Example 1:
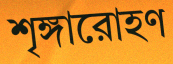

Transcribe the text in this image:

শৃঙ্গারোহণ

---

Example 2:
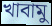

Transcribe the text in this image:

খাবামু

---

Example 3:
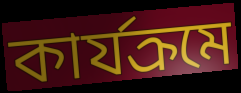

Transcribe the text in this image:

কার্যক্রমে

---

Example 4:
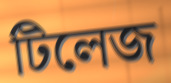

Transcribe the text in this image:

টিলেজ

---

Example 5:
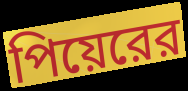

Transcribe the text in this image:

পিয়েরের